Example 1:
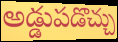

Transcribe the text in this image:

అడ్డుపడొచ్చు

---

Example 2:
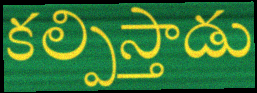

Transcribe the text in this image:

కల్పిస్తాడు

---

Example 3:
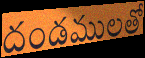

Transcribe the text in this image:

దండములతో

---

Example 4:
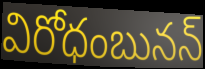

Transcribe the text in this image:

విరోధంబునన్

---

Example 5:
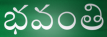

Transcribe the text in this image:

భవంతి